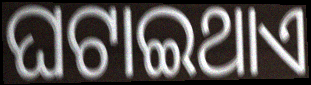
ଘଟାଇଥାଏ